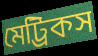
মেট্রিকস